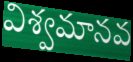
విశ్వమానవ